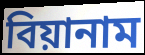
বিয়ানাম